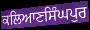
ਕਲਿਆਣਸਿੰਘਪੁਰ